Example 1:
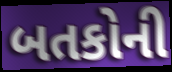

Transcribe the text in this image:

બતકોની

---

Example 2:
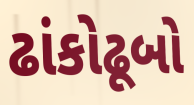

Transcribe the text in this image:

ઢાંકોઢૂબો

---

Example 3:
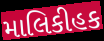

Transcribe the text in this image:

માલિકીહક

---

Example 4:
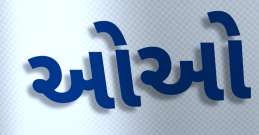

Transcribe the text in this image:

ઓઓ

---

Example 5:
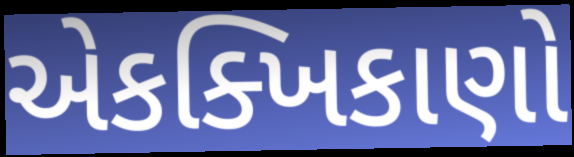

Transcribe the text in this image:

એકક્ખિકાણો